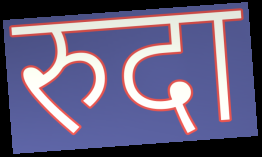
रुदा